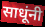
साधूंनी